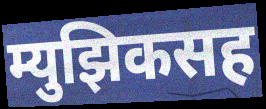
म्युझिकसह